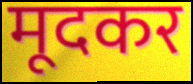
मूदकर